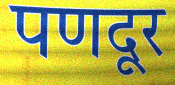
पणदूर